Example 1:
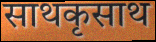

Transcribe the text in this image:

साथकृसाथ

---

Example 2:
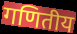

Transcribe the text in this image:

गणितीय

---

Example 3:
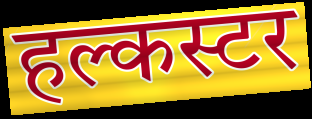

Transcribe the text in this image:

हल्कस्टर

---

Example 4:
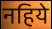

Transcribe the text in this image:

नहिये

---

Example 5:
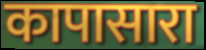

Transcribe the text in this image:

कापासारा